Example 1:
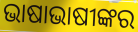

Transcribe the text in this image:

ଭାଷାଭାଷୀଙ୍କର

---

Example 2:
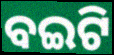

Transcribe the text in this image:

ବଇଟି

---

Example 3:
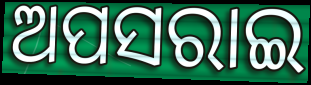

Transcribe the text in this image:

ଅପସରାଇ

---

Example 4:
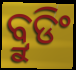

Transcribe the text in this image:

ବ୍ରୁଡିଂ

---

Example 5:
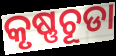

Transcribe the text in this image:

କୃଷ୍ଣଚୂଡା